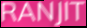
RANJIT